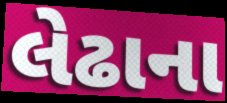
લેઢાના